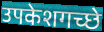
उपकेशगच्छे